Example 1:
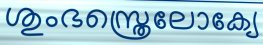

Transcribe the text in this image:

ശുംഭസ്ത്രെലോക്യേ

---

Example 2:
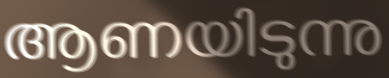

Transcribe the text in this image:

ആണയിടുന്നു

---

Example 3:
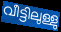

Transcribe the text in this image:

വീട്ടിലുള്ളു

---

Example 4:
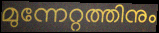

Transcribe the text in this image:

മുന്നേറ്റത്തിനും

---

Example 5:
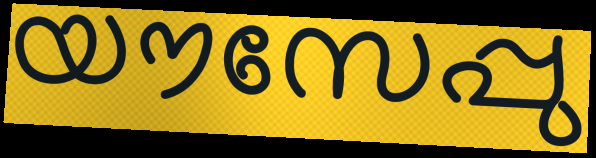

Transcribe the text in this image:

യൗസേപ്പു